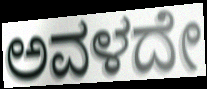
ಅವಳದೇ